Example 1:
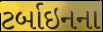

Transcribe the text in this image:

ટર્બાઇનના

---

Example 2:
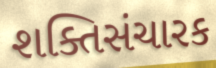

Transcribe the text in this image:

શક્તિસંચારક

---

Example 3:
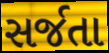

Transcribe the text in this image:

સર્જતા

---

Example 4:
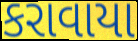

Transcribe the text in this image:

કરાવાયા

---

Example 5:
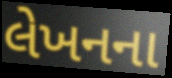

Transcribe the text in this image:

લેખનના